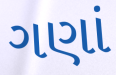
ગણાં